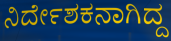
ನಿರ್ದೇಶಕನಾಗಿದ್ದ